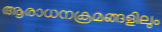
ആരാധനക്രമങ്ങളിലും